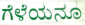
ಗೆಳೆಯನೂ